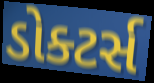
ડોક્ટર્સ